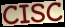
CISC